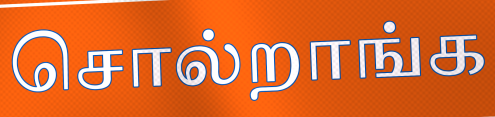
சொல்றாங்க